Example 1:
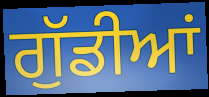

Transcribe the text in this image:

ਗੁੱਡੀਆਂ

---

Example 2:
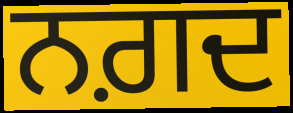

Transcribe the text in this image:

ਨਗ਼ਦ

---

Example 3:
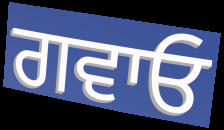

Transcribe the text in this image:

ਗਵਾਓ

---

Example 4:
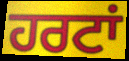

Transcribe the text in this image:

ਹਰਟਾਂ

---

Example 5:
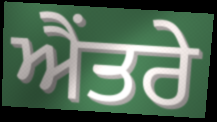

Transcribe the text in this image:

ਐਂਤਰੇ